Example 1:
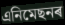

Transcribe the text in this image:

এনিমেছনৰ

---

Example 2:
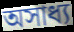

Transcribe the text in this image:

অসাধ্য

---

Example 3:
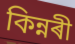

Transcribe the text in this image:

কিন্নৰী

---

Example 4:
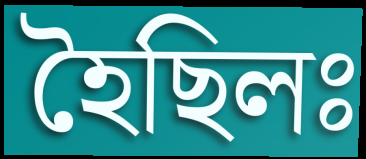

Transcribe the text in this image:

হৈছিলঃ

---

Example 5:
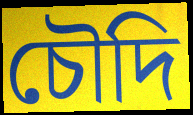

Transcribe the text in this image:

চৌদি